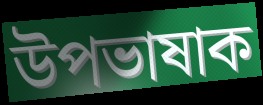
উপভাষাক